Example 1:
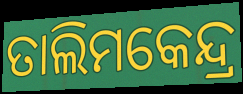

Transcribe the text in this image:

ତାଲିମକେନ୍ଦ୍ର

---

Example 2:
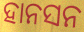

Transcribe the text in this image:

ହାନସନ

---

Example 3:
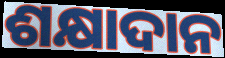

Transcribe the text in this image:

ଶକ୍ଷାଦାନ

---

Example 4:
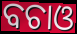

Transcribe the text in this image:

ବଚାଓ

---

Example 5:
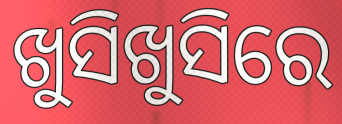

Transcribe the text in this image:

ଖୁସିଖୁସିରେ